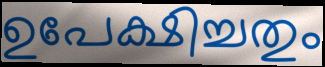
ഉപേക്ഷിച്ചതും